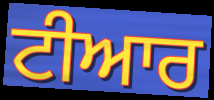
ਟੀਆਰ